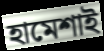
হামেশাই